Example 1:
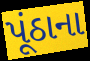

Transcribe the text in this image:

પૂંઠાના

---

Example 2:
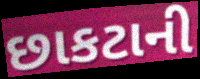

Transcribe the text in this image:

છાકટાની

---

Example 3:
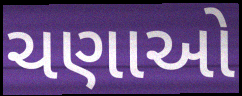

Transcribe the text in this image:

ચણાઓ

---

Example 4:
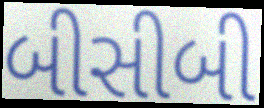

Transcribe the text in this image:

બીસીબી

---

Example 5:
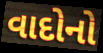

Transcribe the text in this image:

વાદોનો